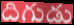
దిగుడు